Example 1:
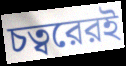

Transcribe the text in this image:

চত্বরেরই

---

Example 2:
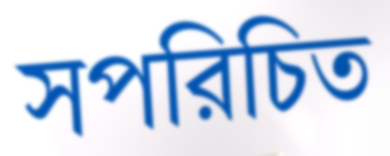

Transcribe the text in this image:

সপরিচিত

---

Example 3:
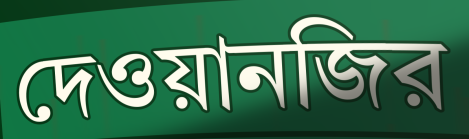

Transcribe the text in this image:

দেওয়ানজির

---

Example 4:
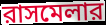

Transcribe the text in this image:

রাসমেলার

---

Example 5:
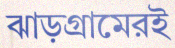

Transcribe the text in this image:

ঝাড়গ্রামেরই